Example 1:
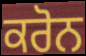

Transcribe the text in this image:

ਕਰੋਨ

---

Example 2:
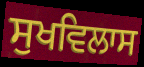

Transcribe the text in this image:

ਸੁਖਵਿਲਾਸ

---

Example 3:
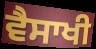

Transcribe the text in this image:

ਵੈਸਾਖੀ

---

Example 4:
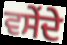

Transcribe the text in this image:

ਵਸੇਂਦੇ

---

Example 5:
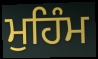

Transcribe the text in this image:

ਮੁਹਿੰਮ